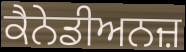
ਕੈਨੇਡੀਅਨਜ਼